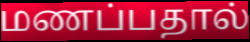
மணப்பதால்